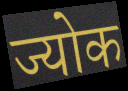
ज्योक